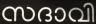
സദാവി